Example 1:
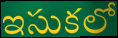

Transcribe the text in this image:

ఇసుకలో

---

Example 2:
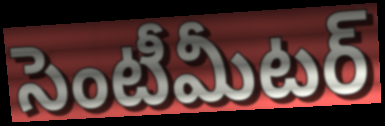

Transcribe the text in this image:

సెంటీమీటర్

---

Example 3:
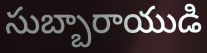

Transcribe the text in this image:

సుబ్బారాయుడి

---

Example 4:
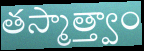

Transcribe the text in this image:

తస్మాత్త్వాం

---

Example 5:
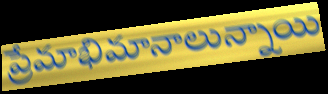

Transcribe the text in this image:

ప్రేమాభిమానాలున్నాయి